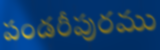
పండరీపురము